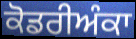
ਕੋਡਰੀਅੰਕਾ